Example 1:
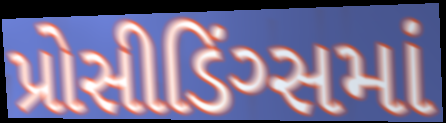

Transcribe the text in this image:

પ્રોસીડિંગ્સમાં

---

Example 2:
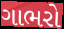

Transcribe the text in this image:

ગાભરો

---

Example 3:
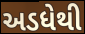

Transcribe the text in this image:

અડધેથી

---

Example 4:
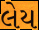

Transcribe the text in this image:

લેય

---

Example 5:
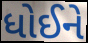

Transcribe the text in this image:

ધોઈને